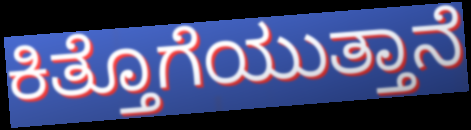
ಕಿತ್ತೊಗೆಯುತ್ತಾನೆ